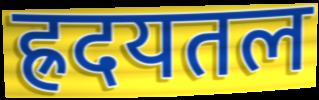
ह्रदयतल